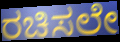
ರಚಿಸಲೇ